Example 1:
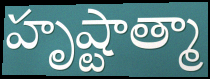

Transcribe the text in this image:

హృష్టాత్మా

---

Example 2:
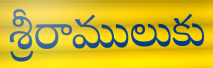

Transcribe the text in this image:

శ్రీరాములుకు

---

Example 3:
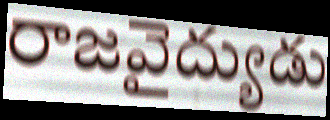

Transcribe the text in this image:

రాజవైద్యుడు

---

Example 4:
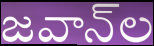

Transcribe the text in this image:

జవాన్‌ల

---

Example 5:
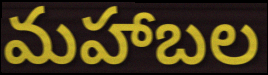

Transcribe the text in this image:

మహాబల